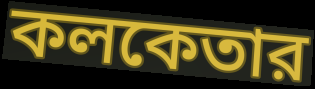
কলকেতার